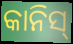
କାନିସ୍